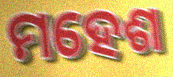
ମହେଶ